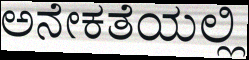
ಅನೇಕತೆಯಲ್ಲಿ